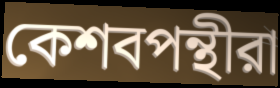
কেশবপন্থীরা